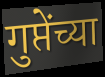
गुप्तेंच्या